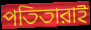
পতিতারাই